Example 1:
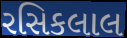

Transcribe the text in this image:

રસિકલાલ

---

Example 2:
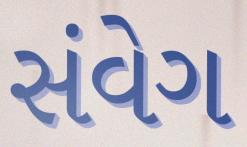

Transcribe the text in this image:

સંવેગ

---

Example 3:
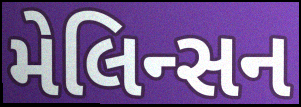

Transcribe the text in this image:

મેલિન્સન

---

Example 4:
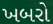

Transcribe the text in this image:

ખબરો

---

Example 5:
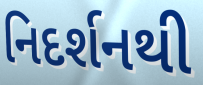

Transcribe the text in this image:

નિદર્શનથી